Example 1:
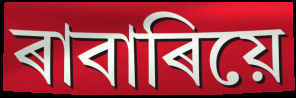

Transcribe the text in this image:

ৰাবাৰিয়ে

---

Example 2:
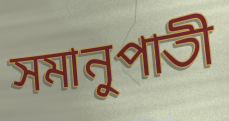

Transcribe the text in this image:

সমানুপাতী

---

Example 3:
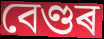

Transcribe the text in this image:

বেণ্ডৰ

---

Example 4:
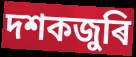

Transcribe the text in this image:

দশকজুৰি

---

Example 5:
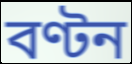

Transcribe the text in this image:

বণ্টন